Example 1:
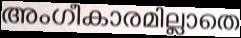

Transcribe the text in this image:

അംഗീകാരമില്ലാതെ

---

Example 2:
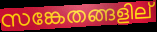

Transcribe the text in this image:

സങ്കേതങ്ങളില്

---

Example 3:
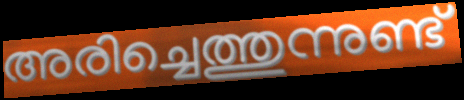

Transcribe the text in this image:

അരിച്ചെത്തുന്നുണ്ട്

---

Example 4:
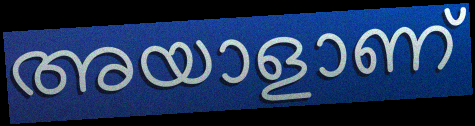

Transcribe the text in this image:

അയാളാണ്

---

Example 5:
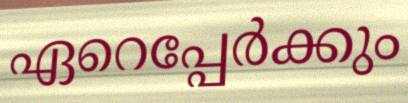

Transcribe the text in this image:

ഏറെപ്പേർക്കും